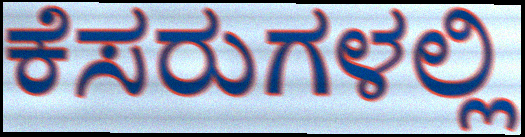
ಕೆಸರುಗಳಲ್ಲಿ